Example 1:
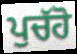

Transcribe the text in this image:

ਪੁਚੱਹੋ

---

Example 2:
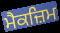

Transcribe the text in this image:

ਮੈਕਜ਼ਿਮ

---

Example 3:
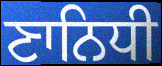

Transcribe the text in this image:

ਣਾਨਿਧੀ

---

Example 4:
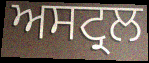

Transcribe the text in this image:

ਅਸਟ੍ਰਲ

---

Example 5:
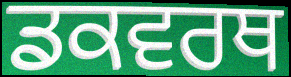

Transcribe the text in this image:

ਡਕਵਰਥ